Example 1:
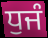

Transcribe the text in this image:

ਧੁਜੰ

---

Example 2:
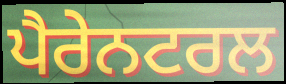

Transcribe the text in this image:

ਪੈਰੇਨਟਰਲ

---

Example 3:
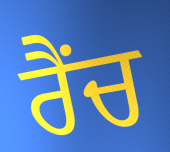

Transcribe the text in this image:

ਰੈਂਚ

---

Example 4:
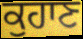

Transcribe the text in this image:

ਕੁਹਾਣ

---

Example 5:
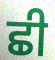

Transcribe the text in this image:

ਛੀ